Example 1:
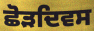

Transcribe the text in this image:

ਛੋੜਦਿਵਸ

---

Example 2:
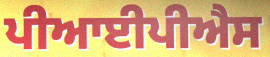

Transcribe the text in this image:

ਪੀਆਈਪੀਐਸ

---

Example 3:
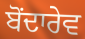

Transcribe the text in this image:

ਬੋਂਦਾਰੇਵ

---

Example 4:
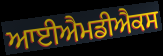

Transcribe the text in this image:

ਆਈਐਮਡੀਐਕਸ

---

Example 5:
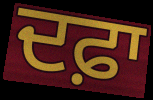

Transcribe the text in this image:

ਦਫ਼ਾ